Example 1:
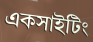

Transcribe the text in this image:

একসাইটিং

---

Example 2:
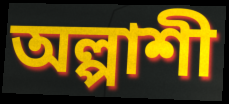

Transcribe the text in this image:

অল্পাশী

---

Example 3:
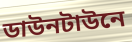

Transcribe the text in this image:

ডাউনটাউনে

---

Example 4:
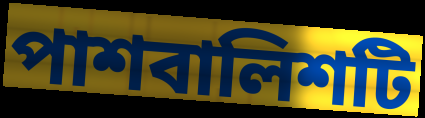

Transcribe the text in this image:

পাশবালিশটি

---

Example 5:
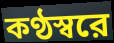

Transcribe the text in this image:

কণ্ঠস্বরে